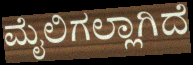
ಮೈಲಿಗಲ್ಲಾಗಿದೆ